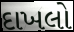
દાખલો